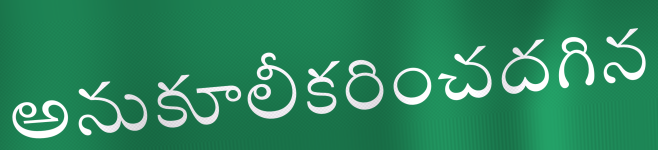
అనుకూలీకరించదగిన